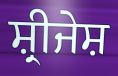
ਸ਼੍ਰੀਜੇਸ਼